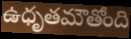
ఉధృతమౌతోంది